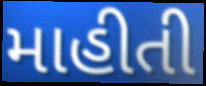
માહીતી